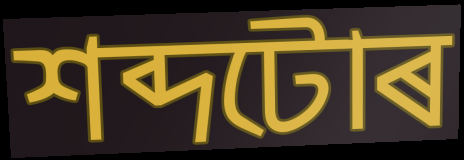
শব্দটোৰ